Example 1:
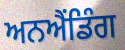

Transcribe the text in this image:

ਅਨਐਂਡਿੰਗ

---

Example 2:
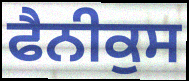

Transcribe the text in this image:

ਫੈਨੀਕੁਸ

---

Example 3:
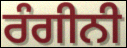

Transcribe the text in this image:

ਰੰਗੀਨੀ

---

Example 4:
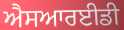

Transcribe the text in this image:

ਐਸਆਰਈਡੀ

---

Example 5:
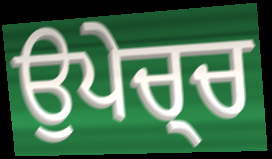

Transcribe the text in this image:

ਉਪੇਚ੍ਚ